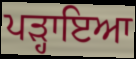
ਪੜ੍ਹਾਇਆ